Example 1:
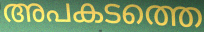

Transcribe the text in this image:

അപകടത്തെ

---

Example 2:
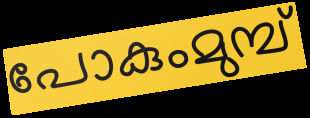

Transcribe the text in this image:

പോകുംമുമ്പ്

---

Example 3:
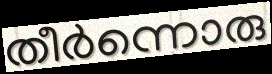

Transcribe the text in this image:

തീർന്നൊരു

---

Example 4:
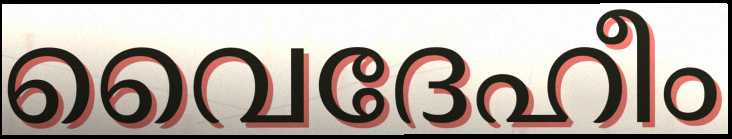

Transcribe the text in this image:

വൈദേഹീം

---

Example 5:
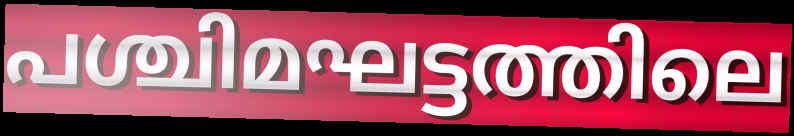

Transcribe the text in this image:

പശ്ചിമഘട്ടത്തിലെ